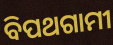
ବିପଥଗାମୀ